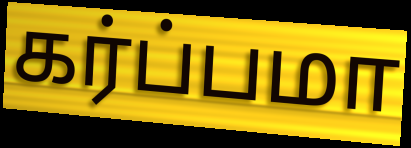
கர்ப்பமா